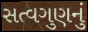
સત્વગુણનું